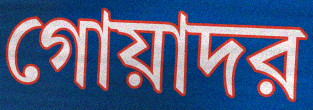
গোয়াদর